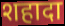
शहादा